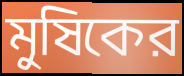
মুষিকের